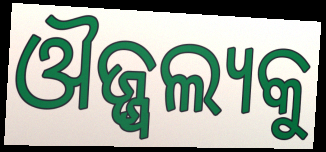
ଔଜ୍ଜ୍ଵଲ୍ୟକୁ